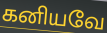
கனியவே